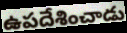
ఉపదేశించాడు